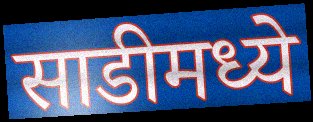
साडीमध्ये